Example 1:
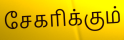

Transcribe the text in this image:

சேகரிக்கும்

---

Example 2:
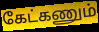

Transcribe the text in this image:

கேட்கணும்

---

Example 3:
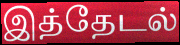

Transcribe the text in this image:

இத்தேடல்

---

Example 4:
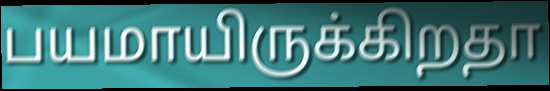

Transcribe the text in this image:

பயமாயிருக்கிறதா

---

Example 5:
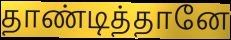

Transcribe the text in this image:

தாண்டித்தானே